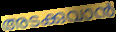
അടക്കുവാൻ